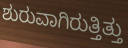
ಶುರುವಾಗಿರುತ್ತಿತ್ತು